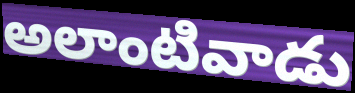
అలాంటివాడు